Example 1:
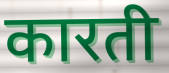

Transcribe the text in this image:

कारती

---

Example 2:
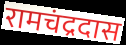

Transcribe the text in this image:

रामचंद्रदास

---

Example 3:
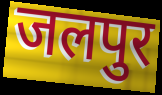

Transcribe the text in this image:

जलपुर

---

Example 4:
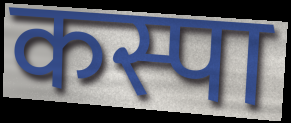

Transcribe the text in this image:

कस्पा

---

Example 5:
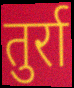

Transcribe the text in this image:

तुर्रा